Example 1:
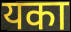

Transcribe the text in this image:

यका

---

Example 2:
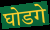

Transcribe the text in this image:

घोडगे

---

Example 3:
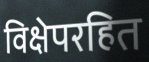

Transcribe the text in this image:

विक्षेपरहित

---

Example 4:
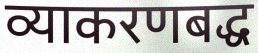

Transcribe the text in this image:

व्याकरणबद्ध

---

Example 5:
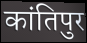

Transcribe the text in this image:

कांतिपुर